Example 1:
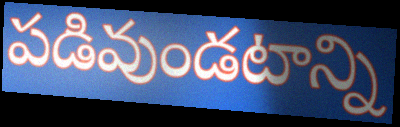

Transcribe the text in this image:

పడివుండటాన్ని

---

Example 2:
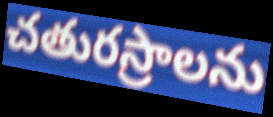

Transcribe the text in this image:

చతురస్రాలను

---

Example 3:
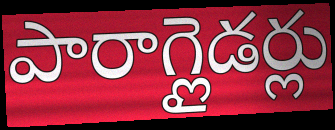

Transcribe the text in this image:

పారాగ్లైడర్లు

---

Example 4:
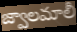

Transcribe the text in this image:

జ్వాలమాలీ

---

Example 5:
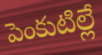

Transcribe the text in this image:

పెంకుటిల్లే